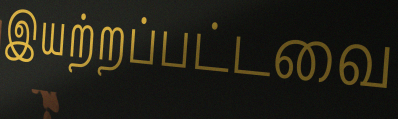
இயற்றப்பட்டவை